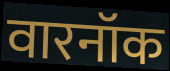
वारनॉक